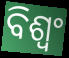
ବିଶ୍ୱଂ